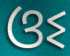
ଓଽ